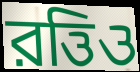
রত্তিও